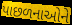
પાછળનાઓને